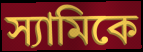
স্যামিকে